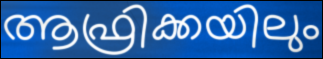
ആഫ്രിക്കയിലും